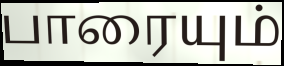
பாரையும்